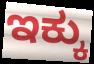
ಇಕ್ಕು